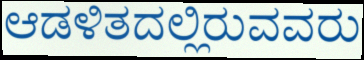
ಆಡಳಿತದಲ್ಲಿರುವವರು